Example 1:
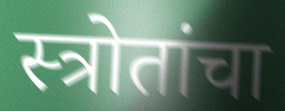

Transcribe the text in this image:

स्त्रोतांचा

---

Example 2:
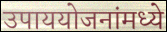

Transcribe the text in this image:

उपाययोजनांमध्ये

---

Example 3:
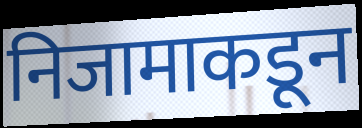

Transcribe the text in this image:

निजामाकडून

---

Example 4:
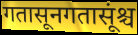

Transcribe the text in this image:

गतासूनगतासूंश्च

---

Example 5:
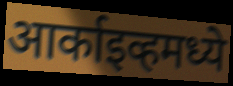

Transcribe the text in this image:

आर्काइव्हमध्ये